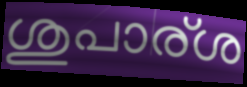
ശുപാര്ശ